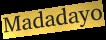
Madadayo